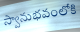
స్వానుభవంలోకి